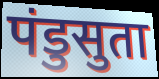
पंडुसुता